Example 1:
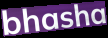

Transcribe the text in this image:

bhasha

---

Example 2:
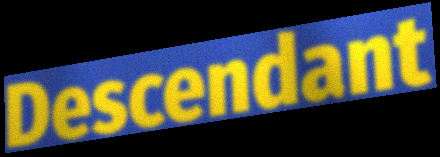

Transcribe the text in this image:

Descendant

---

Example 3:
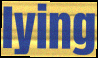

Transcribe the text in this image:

lying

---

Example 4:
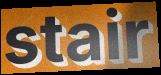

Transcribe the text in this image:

stair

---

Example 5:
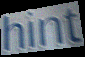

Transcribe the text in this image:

hint